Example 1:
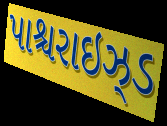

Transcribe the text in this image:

પાશ્ચરાઇઝ્ડ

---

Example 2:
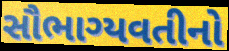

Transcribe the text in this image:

સૌભાગ્યવતીનો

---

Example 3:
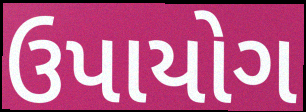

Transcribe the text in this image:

ઉપાયોગ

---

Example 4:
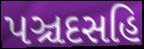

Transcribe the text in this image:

પઞ્ચદસહિ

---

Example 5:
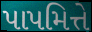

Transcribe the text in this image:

પાપમિત્તે